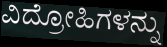
ವಿದ್ರೋಹಿಗಳನ್ನು